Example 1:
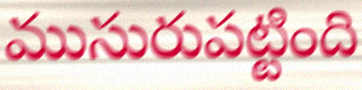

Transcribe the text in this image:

ముసురుపట్టింది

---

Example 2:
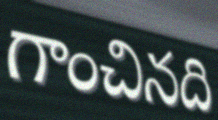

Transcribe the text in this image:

గాంచినది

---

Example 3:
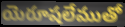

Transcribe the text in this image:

యెరూషలేముతో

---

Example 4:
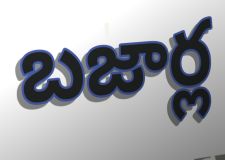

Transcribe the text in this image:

బజార్ల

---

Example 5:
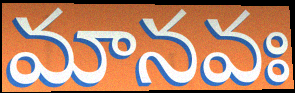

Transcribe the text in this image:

మానవః